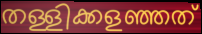
തള്ളിക്കളഞ്ഞത്